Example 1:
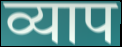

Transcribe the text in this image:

व्याप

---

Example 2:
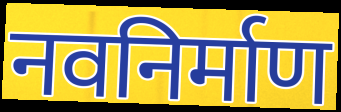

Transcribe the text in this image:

नवनिर्माण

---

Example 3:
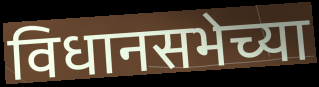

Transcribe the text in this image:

विधानसभेच्या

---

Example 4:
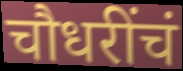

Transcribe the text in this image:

चौधरींचं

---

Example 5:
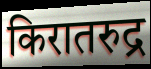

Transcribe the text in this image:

किरातरुद्र